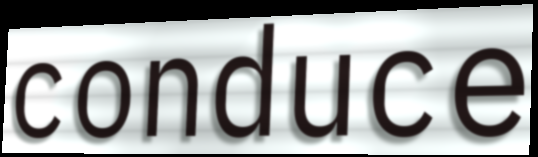
conduce